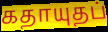
கதாயுதப்